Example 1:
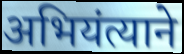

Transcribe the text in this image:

अभियंत्याने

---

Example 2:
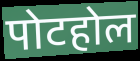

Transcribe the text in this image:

पोटहोल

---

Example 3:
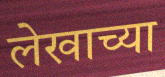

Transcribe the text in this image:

लेखाच्या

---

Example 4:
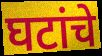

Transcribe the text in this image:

घटांचे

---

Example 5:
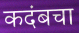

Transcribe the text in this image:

कदंबचा